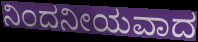
ನಿಂದನೀಯವಾದ